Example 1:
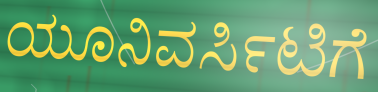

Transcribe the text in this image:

ಯೂನಿವರ್ಸಿಟಿಗೆ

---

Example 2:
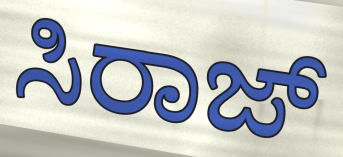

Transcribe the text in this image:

ಸಿರಾಜ್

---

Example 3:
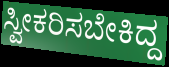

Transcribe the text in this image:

ಸ್ವೀಕರಿಸಬೇಕಿದ್ದ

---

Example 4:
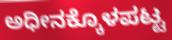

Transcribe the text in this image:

ಅಧೀನಕ್ಕೊಳಪಟ್ಟ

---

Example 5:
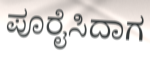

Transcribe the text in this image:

ಪೂರೈಸಿದಾಗ